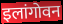
इलांगोवन